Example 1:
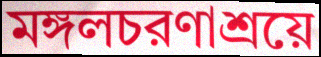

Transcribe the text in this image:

মঙ্গলচরণাশ্রয়ে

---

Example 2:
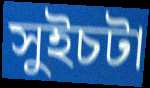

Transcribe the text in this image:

সুইচটা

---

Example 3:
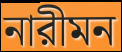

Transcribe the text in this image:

নারীমন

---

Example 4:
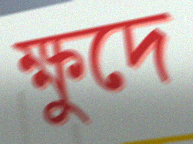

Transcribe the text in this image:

ক্ষুদে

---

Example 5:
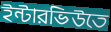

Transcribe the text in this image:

ইন্টারভিউতে